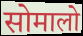
सोमालो